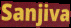
Sanjiva